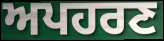
ਅਪਹਰਣ